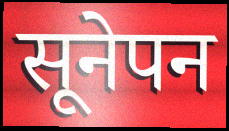
सूनेपन